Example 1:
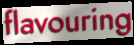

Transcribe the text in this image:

flavouring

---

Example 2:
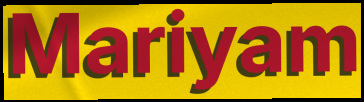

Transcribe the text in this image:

Mariyam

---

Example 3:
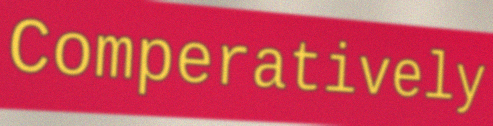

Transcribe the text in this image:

Comperatively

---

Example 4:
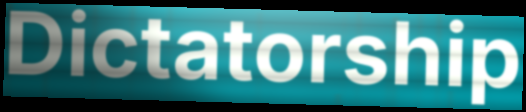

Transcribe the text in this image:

Dictatorship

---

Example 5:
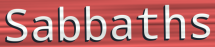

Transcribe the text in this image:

Sabbaths